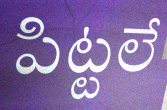
పిట్టలే